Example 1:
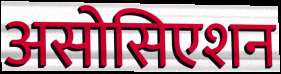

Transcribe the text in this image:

असोसिएशन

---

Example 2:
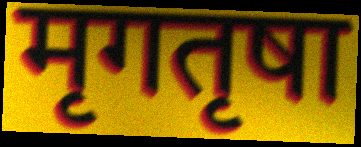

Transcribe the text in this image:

मृगतृषा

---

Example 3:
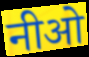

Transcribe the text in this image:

नीओ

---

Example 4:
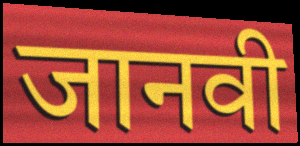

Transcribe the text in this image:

जानवी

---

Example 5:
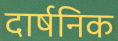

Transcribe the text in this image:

दार्षनिक